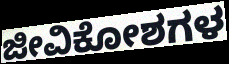
ಜೀವಿಕೋಶಗಳ